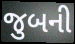
જુબની